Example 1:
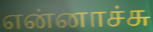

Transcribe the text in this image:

என்னாச்சு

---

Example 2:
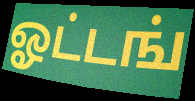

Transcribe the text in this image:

ஓட்டங்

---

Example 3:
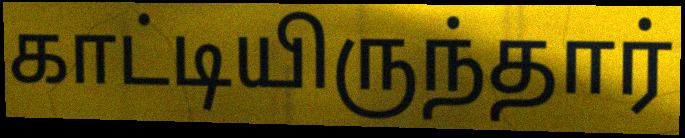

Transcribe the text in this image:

காட்டியிருந்தார்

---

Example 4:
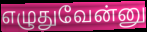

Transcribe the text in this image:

எழுதுவேன்னு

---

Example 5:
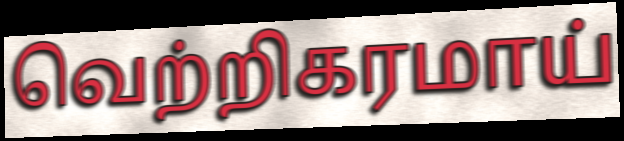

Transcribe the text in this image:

வெற்றிகரமாய்